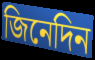
জিনেদিন